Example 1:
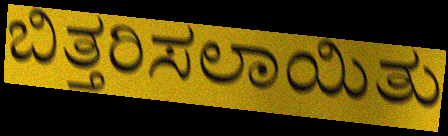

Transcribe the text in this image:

ಬಿತ್ತರಿಸಲಾಯಿತು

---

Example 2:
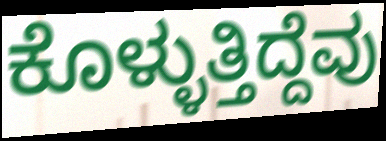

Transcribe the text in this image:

ಕೊಳ್ಳುತ್ತಿದ್ದೆವು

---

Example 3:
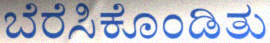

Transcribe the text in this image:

ಬೆರೆಸಿಕೊಂಡಿತು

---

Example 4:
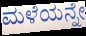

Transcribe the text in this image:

ಮಳೆಯನ್ನೇ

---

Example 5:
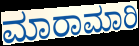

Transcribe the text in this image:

ಮಾರಾಮಾರಿ